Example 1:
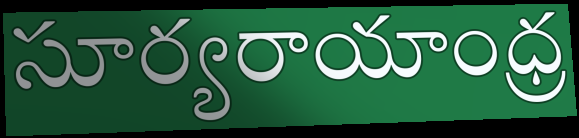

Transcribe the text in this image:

సూర్యరాయాంధ్ర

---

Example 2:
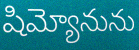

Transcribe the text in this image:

షిమ్యోనును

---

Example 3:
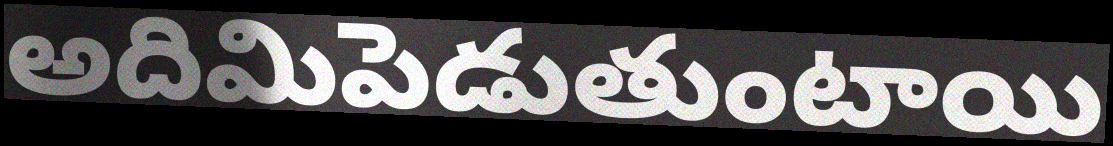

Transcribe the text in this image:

అదిమిపెడుతుంటాయి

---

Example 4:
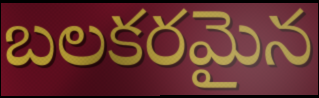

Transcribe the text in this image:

బలకరమైన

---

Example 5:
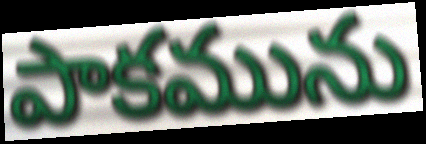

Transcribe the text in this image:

పాకమును